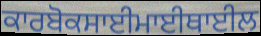
ਕਾਰਬੋਕਸਾਈਮਾਈਥਾਈਲ